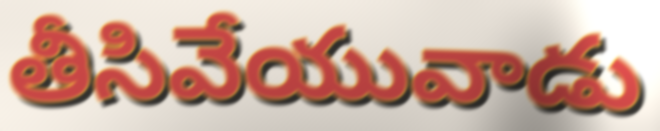
తీసివేయువాడు